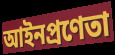
আইনপ্রণেতা